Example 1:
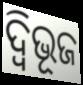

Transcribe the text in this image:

ଦ୍ବିଭୂଜ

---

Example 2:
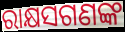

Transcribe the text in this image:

ରାକ୍ଷସଗଣଙ୍କ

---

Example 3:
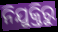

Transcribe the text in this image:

ନିଯୁକ୍ତିରୁ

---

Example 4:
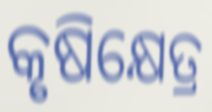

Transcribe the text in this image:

କୃଷିକ୍ଷେତ୍ର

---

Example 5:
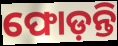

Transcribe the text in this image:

ଫୋଡ଼ନ୍ତି